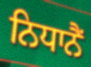
ਨਿਧਾਨੈਂ